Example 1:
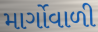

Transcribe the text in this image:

માર્ગોવાળી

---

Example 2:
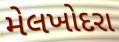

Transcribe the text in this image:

મેલખોદરા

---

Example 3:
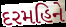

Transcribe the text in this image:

દરમહિને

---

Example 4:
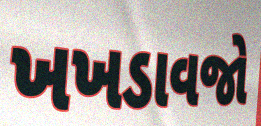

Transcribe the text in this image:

ખખડાવજો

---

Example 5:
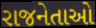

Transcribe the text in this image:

રાજનેતાઓ